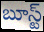
బూస్ట్